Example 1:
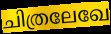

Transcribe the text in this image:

ചിത്രലേഖേ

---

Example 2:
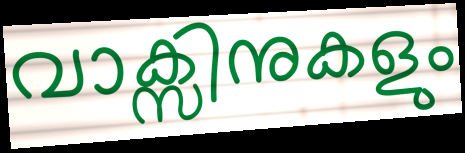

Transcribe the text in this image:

വാക്സിനുകളും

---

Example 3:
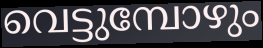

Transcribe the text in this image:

വെട്ടുമ്പോഴും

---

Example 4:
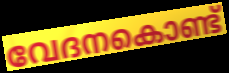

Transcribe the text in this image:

വേദനകൊണ്ട്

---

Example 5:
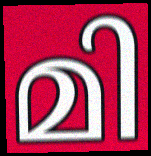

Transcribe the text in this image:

മി